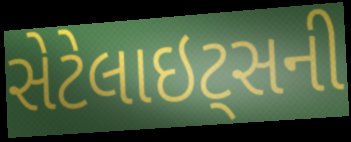
સેટેલાઇટ્સની